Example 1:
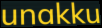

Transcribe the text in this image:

unakku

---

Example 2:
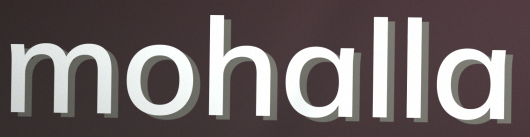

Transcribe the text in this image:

mohalla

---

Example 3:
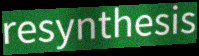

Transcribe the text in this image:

resynthesis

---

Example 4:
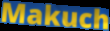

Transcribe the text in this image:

Makuch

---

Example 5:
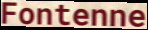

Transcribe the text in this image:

Fontenne